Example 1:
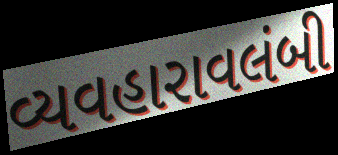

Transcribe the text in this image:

વ્યવહારાવલંબી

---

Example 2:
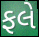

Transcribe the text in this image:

ફલે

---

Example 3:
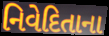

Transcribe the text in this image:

નિવેદિતાના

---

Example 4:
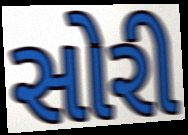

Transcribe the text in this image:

સોરી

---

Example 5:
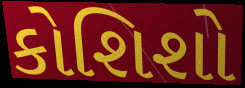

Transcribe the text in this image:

કોશિશો